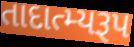
તાદાત્મ્યરૂપ